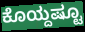
ಕೊಯ್ದಷ್ಟೂ